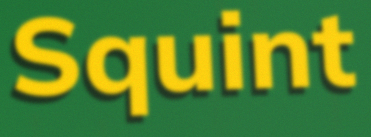
Squint